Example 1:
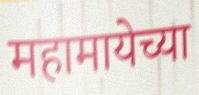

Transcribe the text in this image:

महामायेच्या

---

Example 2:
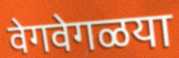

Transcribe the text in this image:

वेगवेगळया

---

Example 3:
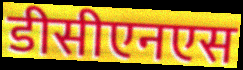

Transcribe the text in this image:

डीसीएनएस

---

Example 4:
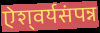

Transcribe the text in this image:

ऐश्वर्यसंपन्न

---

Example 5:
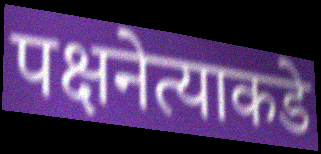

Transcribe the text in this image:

पक्षनेत्याकडे